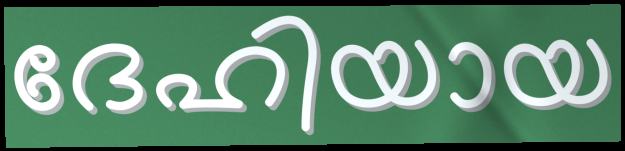
ദേഹിയായ